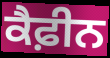
ਕੈਫ਼ੀਨ